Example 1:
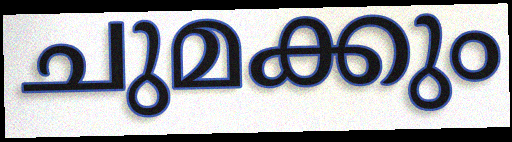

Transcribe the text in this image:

ചുമക്കും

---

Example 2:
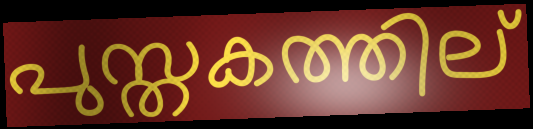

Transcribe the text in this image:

പുസ്തകത്തില്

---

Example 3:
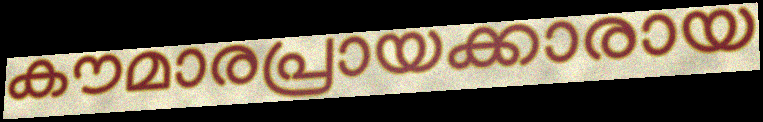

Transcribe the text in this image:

കൗമാരപ്രായക്കാരായ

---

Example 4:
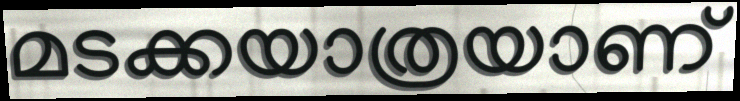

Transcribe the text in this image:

മടക്കയാത്രയാണ്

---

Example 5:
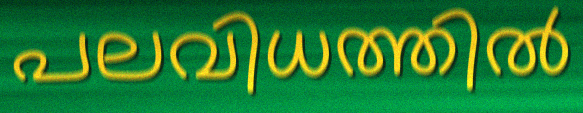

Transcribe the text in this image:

പലവിധത്തിൽ